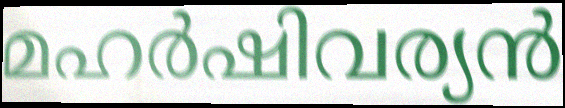
മഹർഷിവര്യൻ